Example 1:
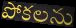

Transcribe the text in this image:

పోకలను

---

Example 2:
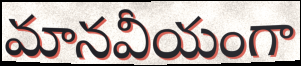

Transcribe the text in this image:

మానవీయంగా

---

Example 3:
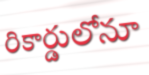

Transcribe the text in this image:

రికార్డులోనూ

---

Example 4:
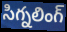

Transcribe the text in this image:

సిగ్నలింగ్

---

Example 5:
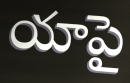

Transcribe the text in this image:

యాపై